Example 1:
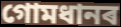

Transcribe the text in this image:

গোমধানৰ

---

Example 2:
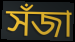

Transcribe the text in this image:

সঁজা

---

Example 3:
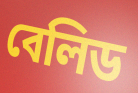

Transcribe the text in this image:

বেলিড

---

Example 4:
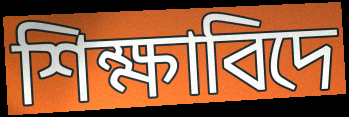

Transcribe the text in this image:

শিক্ষাবিদে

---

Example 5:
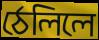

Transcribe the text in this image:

ঠেলিলে